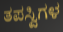
ತಪಸ್ವಿಗಳ